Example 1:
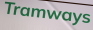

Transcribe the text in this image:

Tramways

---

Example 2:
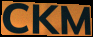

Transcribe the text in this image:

CKM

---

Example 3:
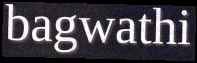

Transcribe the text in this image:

bagwathi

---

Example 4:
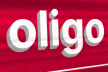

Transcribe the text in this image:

oligo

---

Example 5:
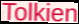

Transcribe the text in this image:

Tolkien